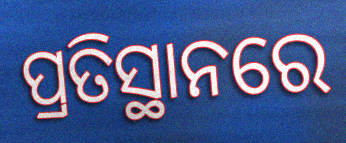
ପ୍ରତିସ୍ଥାନରେ